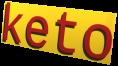
keto